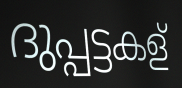
ദുപ്പട്ടകള്